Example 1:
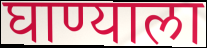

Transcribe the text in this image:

घाण्याला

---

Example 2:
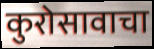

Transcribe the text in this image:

कुरोसावाचा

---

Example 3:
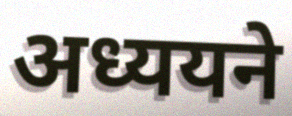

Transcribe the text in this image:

अध्ययने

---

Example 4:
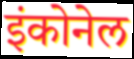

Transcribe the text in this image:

इंकोनेल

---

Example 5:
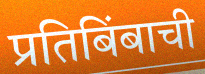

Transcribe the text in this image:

प्रतिबिंबाची